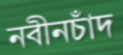
নবীনচাঁদ